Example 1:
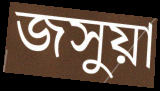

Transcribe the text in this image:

জসুয়া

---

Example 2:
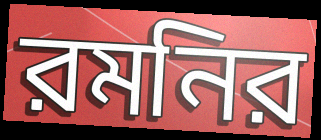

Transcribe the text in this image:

রমনির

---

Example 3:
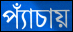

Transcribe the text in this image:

প্যাঁচায়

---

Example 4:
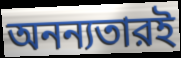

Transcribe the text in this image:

অনন্যতারই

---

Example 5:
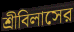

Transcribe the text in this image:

শ্রীবিলাসের